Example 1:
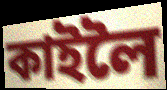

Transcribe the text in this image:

কাইলৈ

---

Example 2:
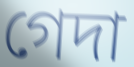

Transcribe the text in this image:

গেদা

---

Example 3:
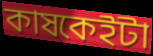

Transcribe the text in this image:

কাষকেইটা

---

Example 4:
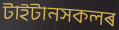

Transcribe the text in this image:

টাইটানসকলৰ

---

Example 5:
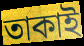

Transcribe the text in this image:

তাকাই